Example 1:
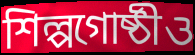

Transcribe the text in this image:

শিল্পগোষ্ঠীও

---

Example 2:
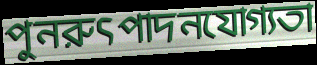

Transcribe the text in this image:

পুনরুৎপাদনযোগ্যতা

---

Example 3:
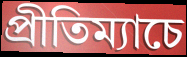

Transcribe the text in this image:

প্রীতিম্যাচে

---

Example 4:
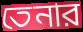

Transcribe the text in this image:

তেনার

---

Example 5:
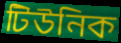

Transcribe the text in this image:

টিউনিক